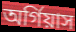
অর্গিয়াস